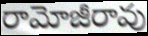
రామోజీరావు